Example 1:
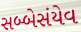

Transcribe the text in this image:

સબ્બેસંયેવ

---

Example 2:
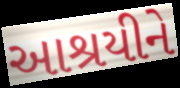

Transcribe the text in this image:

આશ્રયીને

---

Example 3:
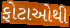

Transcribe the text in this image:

ફોટાઓથી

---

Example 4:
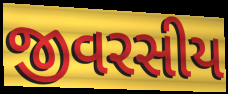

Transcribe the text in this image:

જીવરસીય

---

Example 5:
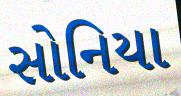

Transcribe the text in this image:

સોનિયા